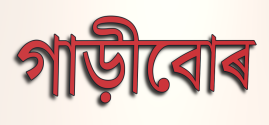
গাড়ীবোৰ